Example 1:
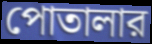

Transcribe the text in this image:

পোতালার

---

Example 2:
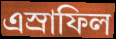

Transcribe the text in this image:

এস্রাফিল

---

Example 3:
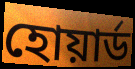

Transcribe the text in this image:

হোয়ার্ড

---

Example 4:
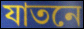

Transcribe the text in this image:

যাতনে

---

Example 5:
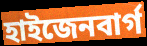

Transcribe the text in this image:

হাইজেনবার্গ